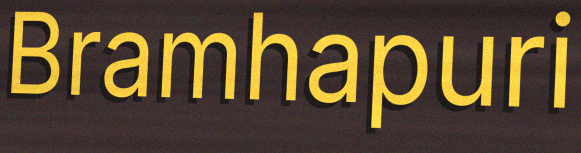
Bramhapuri